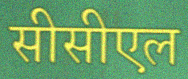
सीसीएल